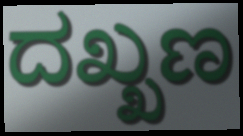
ದಖ್ಖಣ